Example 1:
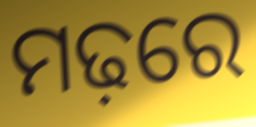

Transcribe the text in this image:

ମଢ଼ରେ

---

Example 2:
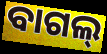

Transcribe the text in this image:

ବାଗଲ୍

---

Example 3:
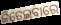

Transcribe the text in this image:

ଜିତେଇବାରେ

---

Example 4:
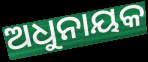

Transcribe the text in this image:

ଅଧୁନାୟକ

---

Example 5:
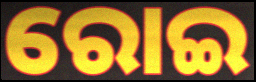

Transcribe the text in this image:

ରୋଇ